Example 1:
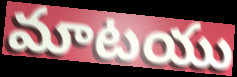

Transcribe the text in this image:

మాటయు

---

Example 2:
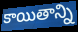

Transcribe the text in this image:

కాయితాన్ని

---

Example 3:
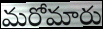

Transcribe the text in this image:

మరోమారు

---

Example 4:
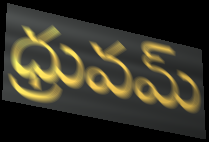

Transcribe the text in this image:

ధ్రువమ్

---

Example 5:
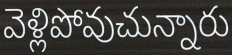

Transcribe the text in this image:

వెళ్లిపోవుచున్నారు